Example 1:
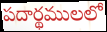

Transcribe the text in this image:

పదార్థములలో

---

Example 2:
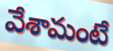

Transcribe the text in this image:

వేశామంటే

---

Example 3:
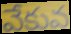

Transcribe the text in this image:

వేకువ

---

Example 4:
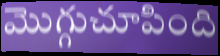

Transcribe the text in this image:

మొగ్గుచూపింది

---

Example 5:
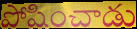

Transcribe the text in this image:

పోషించాడు